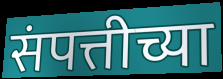
संपत्तीच्या